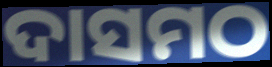
ଦାସମଠ